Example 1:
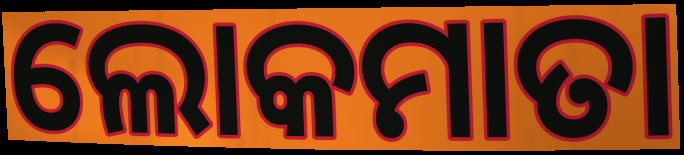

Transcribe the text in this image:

ଲୋକମାତା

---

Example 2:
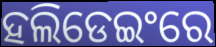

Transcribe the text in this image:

ହଲିଡେଇଂରେ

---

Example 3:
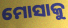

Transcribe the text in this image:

ମୋସାକୁ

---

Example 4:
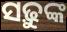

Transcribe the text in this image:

ସଢ଼ୁଙ୍କ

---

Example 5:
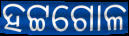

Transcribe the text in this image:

ହଟ୍ଟଗୋଳ